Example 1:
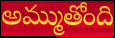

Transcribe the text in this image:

అమ్ముతోంది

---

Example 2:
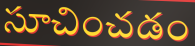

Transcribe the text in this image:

సూచించడం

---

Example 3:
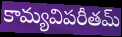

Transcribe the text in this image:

కామ్యవిపరీతమ్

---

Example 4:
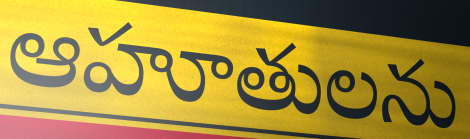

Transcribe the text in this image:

ఆహూతులను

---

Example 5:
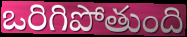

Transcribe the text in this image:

ఒరిగిపోతుంది